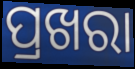
ପ୍ରଖରା